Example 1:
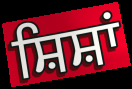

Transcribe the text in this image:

ਸ਼ਿਸ਼ਾਂ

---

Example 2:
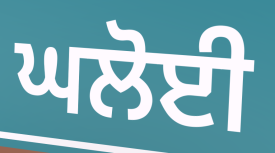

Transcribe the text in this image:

ਘਲੋਈ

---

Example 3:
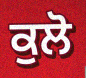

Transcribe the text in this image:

ਕੁਲੋ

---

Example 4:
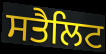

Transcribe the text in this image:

ਸਤੈਲਿਟ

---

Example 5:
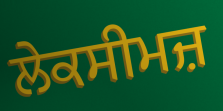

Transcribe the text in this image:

ਲੇਕਸੀਮਜ਼